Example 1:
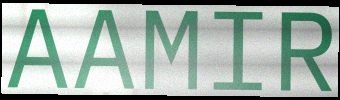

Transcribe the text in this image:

AAMIR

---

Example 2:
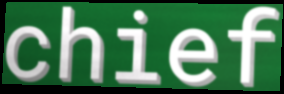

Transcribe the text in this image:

chief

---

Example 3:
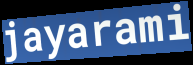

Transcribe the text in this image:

jayarami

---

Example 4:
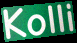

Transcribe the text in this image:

Kolli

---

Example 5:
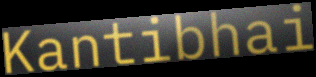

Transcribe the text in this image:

Kantibhai